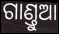
ଗାଣ୍ତୁଆ